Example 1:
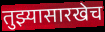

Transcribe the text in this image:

तुझ्यासारखेच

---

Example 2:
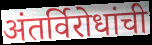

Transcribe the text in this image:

अंतर्विरोधांची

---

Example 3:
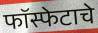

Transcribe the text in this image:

फॉस्फेटाचे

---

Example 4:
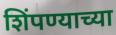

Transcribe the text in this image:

शिंपण्याच्या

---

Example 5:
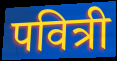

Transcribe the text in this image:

पवित्री